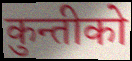
कुन्तीको